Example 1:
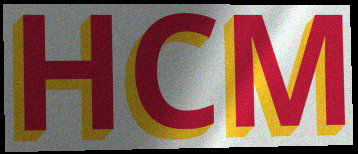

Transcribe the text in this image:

HCM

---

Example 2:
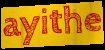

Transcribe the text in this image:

ayithe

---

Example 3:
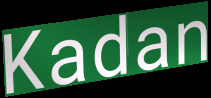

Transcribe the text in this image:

Kadan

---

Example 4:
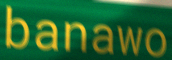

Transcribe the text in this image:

banawo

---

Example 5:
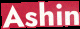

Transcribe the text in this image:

Ashin